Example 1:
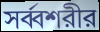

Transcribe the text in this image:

সর্ব্বশরীর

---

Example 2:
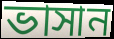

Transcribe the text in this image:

ভাসান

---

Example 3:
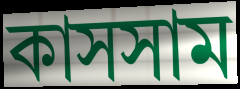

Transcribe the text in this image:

কাসসাম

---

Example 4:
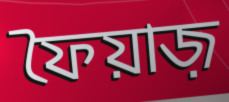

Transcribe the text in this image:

ফৈয়াজ়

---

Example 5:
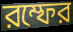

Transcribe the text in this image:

রম্ফের